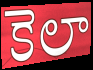
కెలా